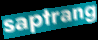
saptrang